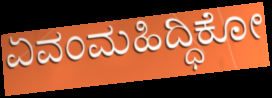
ಏವಂಮಹಿದ್ಧಿಕೋ